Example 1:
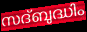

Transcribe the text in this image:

സദ്ബുദ്ധിം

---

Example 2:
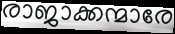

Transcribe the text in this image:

രാജാക്കന്മാരേ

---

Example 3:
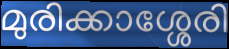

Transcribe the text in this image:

മുരിക്കാശ്ശേരി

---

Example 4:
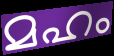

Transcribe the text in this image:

മഹം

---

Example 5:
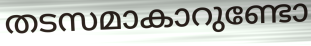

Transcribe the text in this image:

തടസമാകാറുണ്ടോ